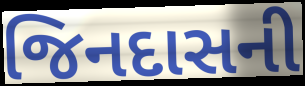
જિનદાસની